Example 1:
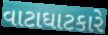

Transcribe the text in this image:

વાટાઘાટકારે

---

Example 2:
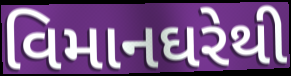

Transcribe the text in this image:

વિમાનઘરેથી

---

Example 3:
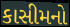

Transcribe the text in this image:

કાસીમનો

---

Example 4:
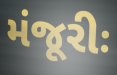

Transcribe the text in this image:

મંજૂરીઃ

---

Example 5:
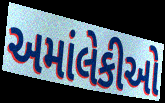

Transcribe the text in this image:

અમાંલેકીઓ